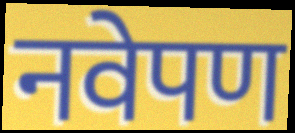
नवेपण